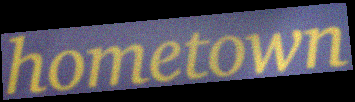
hometown